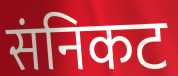
संनिकट